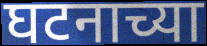
घटनाच्या